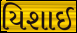
યિશાઈ